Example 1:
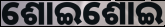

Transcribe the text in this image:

ଶୋଇଶୋଇ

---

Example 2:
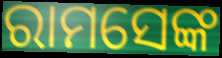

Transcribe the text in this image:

ରାମସେଙ୍କ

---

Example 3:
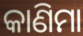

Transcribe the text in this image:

କାଣିମା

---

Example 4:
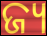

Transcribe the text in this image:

ଜ୍ୟ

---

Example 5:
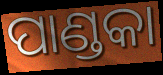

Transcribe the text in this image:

ପାଣ୍ଡକା